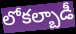
లోకల్బాడీ